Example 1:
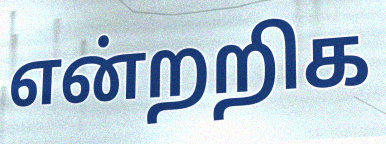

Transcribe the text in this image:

என்றறிக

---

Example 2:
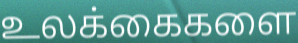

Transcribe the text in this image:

உலக்கைகளை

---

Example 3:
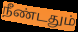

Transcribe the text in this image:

நீண்டதும்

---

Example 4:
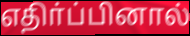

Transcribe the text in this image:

எதிர்ப்பினால்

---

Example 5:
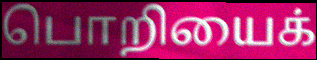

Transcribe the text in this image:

பொறியைக்